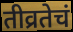
तीव्रतेचं